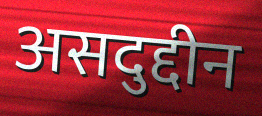
असदुद्दीन